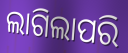
ଲାଗିଲାପରି